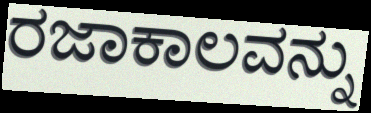
ರಜಾಕಾಲವನ್ನು